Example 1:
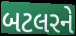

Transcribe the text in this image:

બટલરને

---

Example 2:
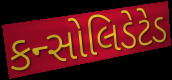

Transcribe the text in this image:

કન્સોલિડેટેડ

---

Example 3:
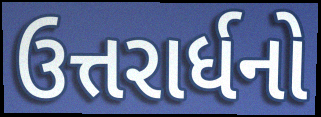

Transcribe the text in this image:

ઉત્તરાર્ધનો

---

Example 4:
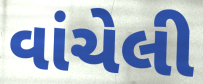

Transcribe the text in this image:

વાંચેલી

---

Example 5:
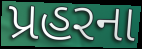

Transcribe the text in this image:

પ્રહરના